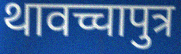
थावच्चापुत्र